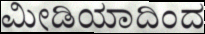
ಮೀಡಿಯಾದಿಂದ